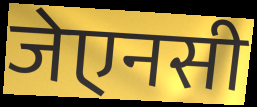
जेएनसी